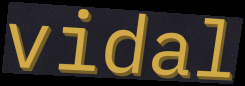
vidal